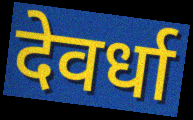
देवर्धा